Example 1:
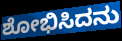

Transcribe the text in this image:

ಶೋಭಿಸಿದನು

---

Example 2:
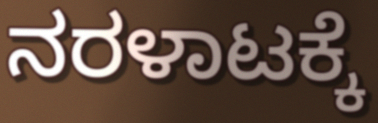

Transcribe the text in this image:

ನರಳಾಟಕ್ಕೆ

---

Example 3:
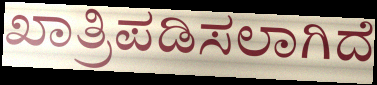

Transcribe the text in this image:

ಖಾತ್ರಿಪಡಿಸಲಾಗಿದೆ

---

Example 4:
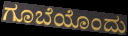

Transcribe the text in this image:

ಗೂಬೆಯೊಂದು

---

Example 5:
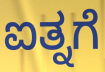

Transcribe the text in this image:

ಐತ್ನಗೆ